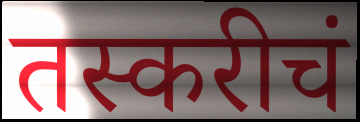
तस्करीचं